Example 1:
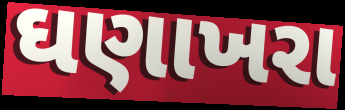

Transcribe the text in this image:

ઘણાખરા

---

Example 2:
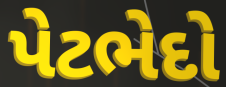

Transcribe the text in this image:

પેટભેદો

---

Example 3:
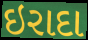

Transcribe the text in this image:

ઇરાદા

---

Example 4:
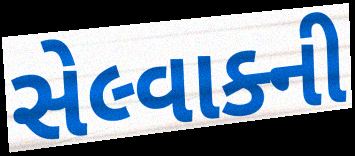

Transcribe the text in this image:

સેલ્વાક્ની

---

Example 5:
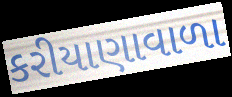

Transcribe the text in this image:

કરીયાણાવાળા